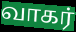
வாகர்